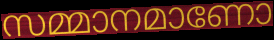
സമ്മാനമാണോ